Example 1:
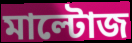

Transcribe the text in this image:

মাল্টোজ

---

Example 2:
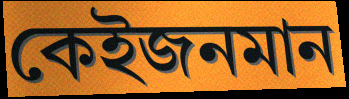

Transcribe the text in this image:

কেইজনমান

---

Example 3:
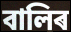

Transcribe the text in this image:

বালিৰ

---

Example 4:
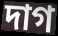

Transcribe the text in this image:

দাগ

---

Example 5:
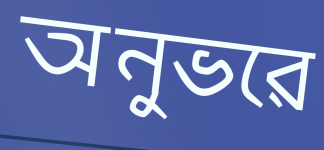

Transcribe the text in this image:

অনুভৱে